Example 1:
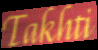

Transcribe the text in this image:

Takhti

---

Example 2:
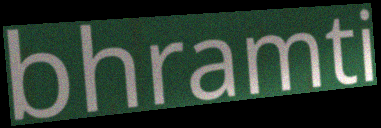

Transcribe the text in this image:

bhramti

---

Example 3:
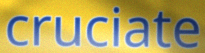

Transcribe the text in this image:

cruciate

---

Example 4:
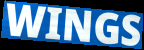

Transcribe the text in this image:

WINGS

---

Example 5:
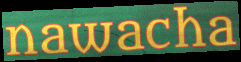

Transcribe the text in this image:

nawacha